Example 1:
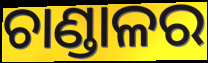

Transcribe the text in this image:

ଚାଣ୍ଡାଳର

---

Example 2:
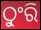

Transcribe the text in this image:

ଠୁଂରି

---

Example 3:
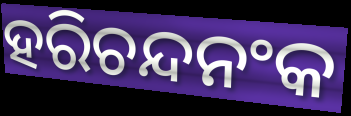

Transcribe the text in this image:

ହରିଚନ୍ଦନଂକ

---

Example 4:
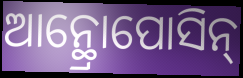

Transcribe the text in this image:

ଆନ୍ଥ୍ରୋପୋସିନ୍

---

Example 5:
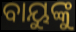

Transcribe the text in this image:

ବାୟୁଙ୍କୁ